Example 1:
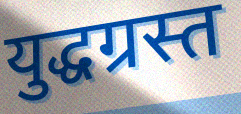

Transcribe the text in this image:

युद्धग्रस्त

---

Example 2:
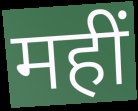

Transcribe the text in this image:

महीं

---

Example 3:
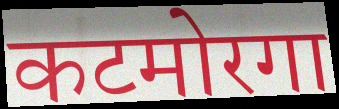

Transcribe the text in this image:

कटमोरगा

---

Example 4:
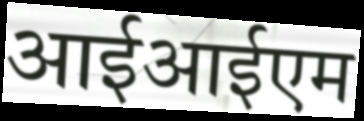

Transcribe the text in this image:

आईआईएम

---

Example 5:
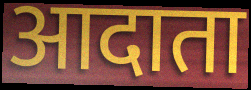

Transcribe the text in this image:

आदाता